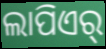
ଲାପିଏର୍